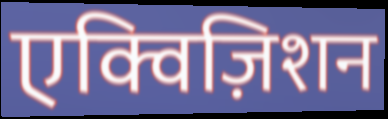
एक्विज़िशन